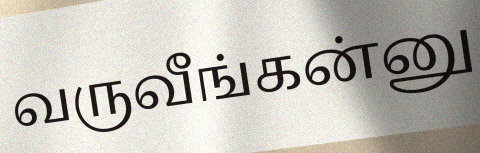
வருவீங்கன்னு